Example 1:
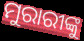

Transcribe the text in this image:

ମୁରାରୀଙ୍କୁ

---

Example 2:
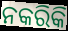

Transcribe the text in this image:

ନକରିକି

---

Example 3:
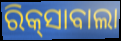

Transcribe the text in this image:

ରିକ୍‌ସାବାଲା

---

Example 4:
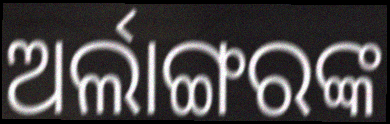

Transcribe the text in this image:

ଅର୍ଲାଙ୍ଗରଙ୍କ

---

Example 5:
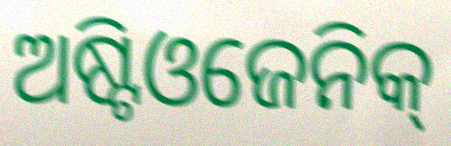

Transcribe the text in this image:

ଅଷ୍ଟିଓଜେନିକ୍